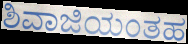
ಶಿವಾಜಿಯಂತಹ